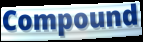
Compound